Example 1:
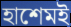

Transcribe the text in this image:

হাশেমই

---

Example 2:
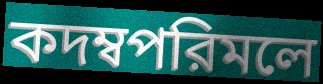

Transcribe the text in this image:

কদম্বপরিমলে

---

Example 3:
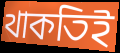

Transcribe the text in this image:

থাকতিই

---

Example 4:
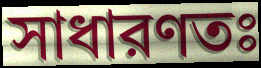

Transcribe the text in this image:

সাধারণতঃ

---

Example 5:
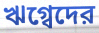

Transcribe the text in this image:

ঋগ্বেদের